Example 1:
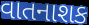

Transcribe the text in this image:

વાતનાશક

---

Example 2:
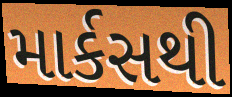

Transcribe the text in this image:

માર્કસથી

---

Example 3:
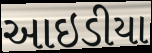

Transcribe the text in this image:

આઇડીયા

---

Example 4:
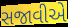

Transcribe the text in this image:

સજાવીએ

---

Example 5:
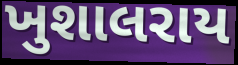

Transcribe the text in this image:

ખુશાલરાય